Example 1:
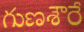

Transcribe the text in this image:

గుణశౌరే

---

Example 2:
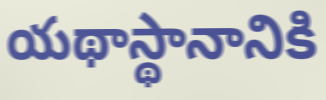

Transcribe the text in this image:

యథాస్థానానికి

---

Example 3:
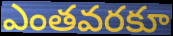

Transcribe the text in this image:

ఎంతవరకూ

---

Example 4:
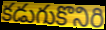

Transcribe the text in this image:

కడుగుకొనిరి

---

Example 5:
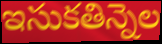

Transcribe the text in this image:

ఇసుకతిన్నెల